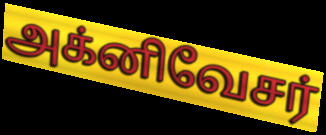
அக்னிவேசர்